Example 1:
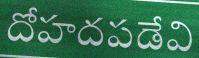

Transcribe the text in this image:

దోహదపడేవి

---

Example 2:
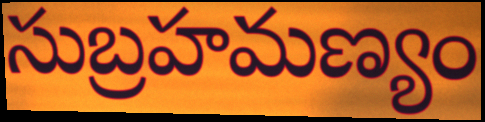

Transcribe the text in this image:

సుబ్రహమణ్యం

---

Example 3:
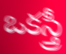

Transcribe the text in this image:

ఒకస్త్రీ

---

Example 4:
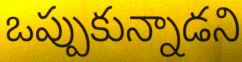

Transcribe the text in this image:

ఒప్పుకున్నాడని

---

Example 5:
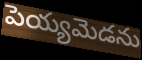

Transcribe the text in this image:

పెయ్యమెడను